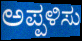
ಅಪ್ಪಳಿಸು